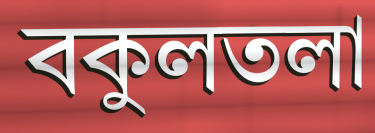
বকুলতলা